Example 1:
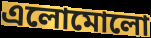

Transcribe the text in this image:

এলোমোলো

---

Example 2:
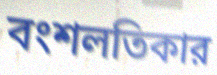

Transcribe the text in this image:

বংশলতিকার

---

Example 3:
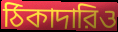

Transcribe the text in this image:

ঠিকাদারিও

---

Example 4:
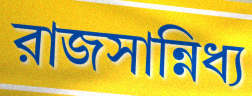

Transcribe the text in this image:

রাজসান্নিধ্য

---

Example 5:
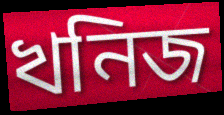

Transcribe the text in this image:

খনিজ